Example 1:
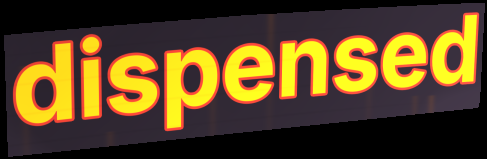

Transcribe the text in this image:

dispensed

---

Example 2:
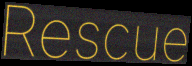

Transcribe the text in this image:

Rescue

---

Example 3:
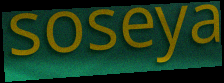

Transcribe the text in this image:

soseya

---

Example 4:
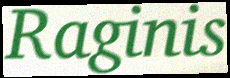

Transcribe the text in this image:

Raginis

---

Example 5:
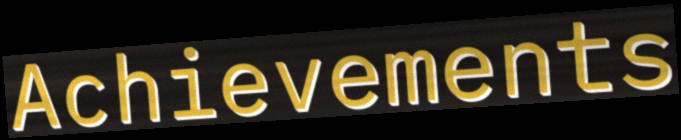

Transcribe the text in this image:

Achievements